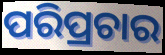
ପରିପ୍ରଚାର